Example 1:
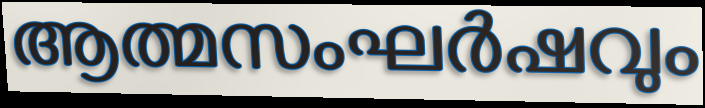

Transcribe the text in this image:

ആത്മസംഘർഷവും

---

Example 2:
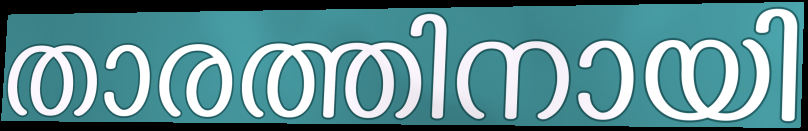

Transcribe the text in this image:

താരത്തിനായി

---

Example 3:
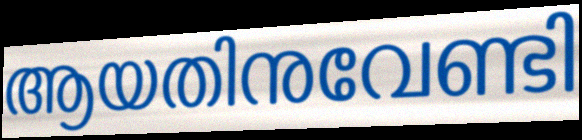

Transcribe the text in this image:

ആയതിനുവേണ്ടി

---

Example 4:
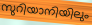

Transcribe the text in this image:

സുറിയാനിയിലും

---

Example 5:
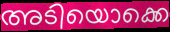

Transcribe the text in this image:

അടിയൊക്കെ